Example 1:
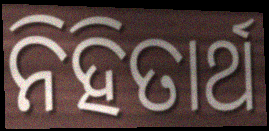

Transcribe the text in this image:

ନିହିତାର୍ଥ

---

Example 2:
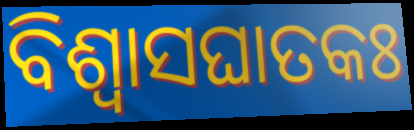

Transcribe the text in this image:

ବିଶ୍ୱାସଘାତକଃ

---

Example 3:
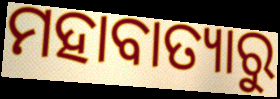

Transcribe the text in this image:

ମହାବାତ୍ୟାରୁ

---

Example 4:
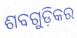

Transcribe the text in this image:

ଶବଗୁଡ଼ିକର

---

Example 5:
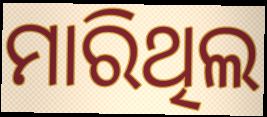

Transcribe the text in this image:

ମାରିଥିଲ